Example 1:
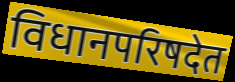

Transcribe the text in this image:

विधानपरिषदेत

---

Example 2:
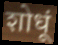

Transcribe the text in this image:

शोधूं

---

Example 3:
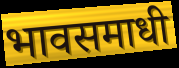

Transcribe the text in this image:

भावसमाधी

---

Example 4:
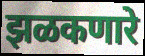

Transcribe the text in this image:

झळकणारे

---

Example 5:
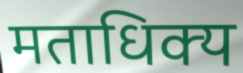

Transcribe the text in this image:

मताधिक्‍य